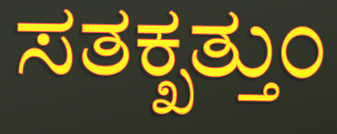
ಸತಕ್ಖತ್ತುಂ